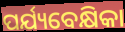
ପର୍ଯ୍ୟବେକ୍ଷିକା